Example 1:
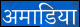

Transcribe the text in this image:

अमाडिया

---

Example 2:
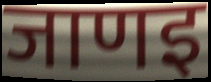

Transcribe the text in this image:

जाणइ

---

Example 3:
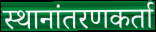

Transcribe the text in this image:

स्थानांतरणकर्ता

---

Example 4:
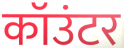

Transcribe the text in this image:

कॉउंटर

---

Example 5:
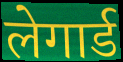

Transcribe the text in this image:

लेगार्ड